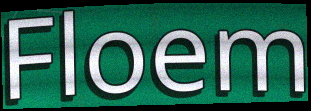
Floem